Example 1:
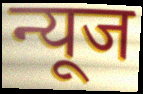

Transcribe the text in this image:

न्यूज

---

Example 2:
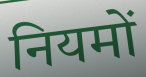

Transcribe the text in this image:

नियमों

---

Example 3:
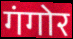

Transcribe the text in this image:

गंगोर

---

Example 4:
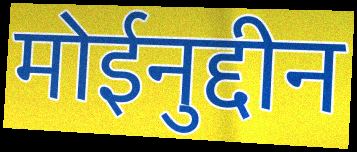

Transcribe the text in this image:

मोईनुद्दीन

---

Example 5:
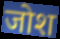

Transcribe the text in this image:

जोश